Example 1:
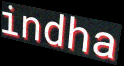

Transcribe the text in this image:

indha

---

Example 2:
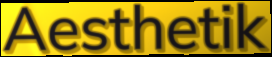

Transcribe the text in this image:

Aesthetik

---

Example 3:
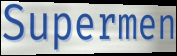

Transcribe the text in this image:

Supermen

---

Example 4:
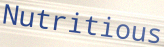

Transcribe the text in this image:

Nutritious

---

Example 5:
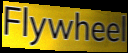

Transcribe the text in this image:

Flywheel